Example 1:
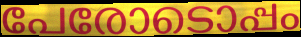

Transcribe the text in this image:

പേരോടൊപ്പം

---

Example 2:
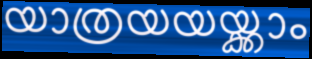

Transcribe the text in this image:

യാത്രയയയ്ക്കാം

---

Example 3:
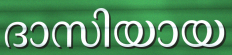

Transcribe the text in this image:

ദാസിയായ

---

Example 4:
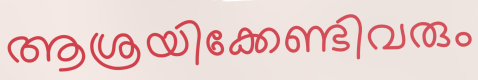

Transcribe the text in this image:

ആശ്രയിക്കേണ്ടിവരും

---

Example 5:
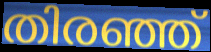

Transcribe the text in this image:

തിരഞ്ഞ്